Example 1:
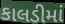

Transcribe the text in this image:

કાલડીમાં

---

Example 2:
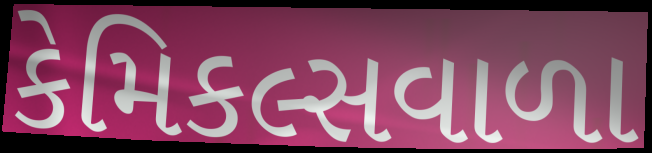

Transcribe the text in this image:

કેમિકલ્સવાળા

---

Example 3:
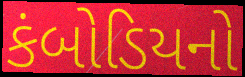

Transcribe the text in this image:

કંબોડિયનો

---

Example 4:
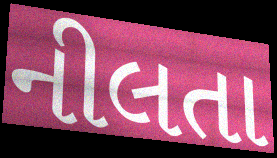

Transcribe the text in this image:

નીલતા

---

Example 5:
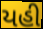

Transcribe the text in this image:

યહી